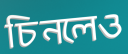
চিনলেও